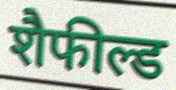
शैफील्ड